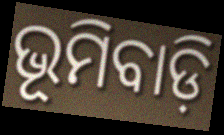
ଭୂମିବାଡ଼ି